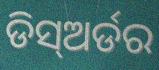
ଡିସ୍ଅର୍ଡର